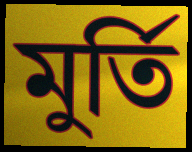
মুৰ্তি